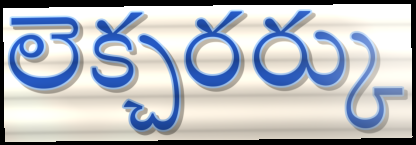
లెక్చరర్కు